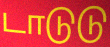
டாடுடு